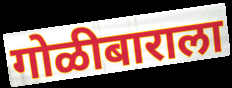
गोळीबाराला